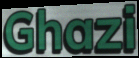
Ghazi